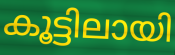
കൂട്ടിലായി